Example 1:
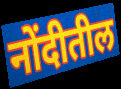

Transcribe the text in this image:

नोंदीतील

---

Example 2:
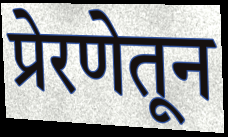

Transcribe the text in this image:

प्रेरणेतून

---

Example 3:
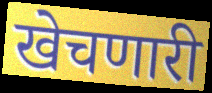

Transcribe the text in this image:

खेचणारी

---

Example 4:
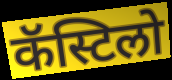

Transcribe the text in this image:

कॅस्टिलो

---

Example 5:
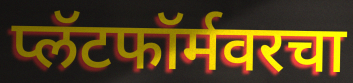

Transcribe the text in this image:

प्लॅटफॉर्मवरचा